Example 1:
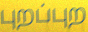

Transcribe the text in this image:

புறப்புற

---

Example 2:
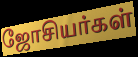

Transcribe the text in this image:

ஜோசியர்கள்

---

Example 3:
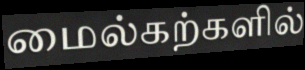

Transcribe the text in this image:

மைல்கற்களில்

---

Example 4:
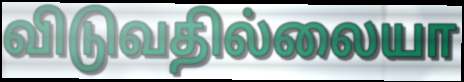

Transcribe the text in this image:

விடுவதில்லையா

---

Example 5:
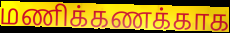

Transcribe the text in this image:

மணிக்கணக்காக